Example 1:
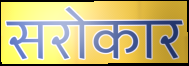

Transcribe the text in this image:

सरोकार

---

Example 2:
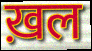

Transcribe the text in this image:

ख़ल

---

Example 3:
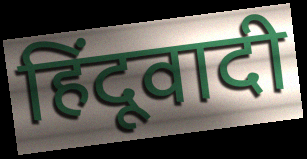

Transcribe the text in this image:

हिंदूवादी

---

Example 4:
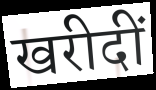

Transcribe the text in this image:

खरीदीं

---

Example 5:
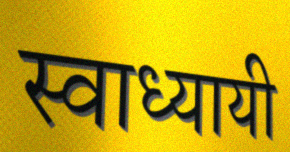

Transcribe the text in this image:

स्वाध्यायी